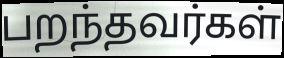
பறந்தவர்கள்